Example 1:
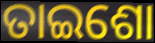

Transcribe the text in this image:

ତାଇଶୋ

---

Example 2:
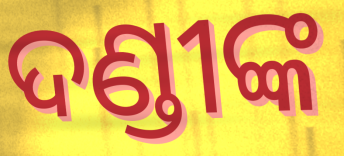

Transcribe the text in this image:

ଦଣ୍ଡୀଙ୍କ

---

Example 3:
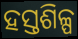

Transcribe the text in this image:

ହସ୍ତଶିଳ୍ପ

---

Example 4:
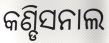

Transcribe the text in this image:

କଣ୍ଡିସନାଲ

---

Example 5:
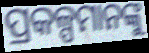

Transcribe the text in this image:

ପ୍ରକଳ୍ପମାନଙ୍କୁ